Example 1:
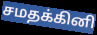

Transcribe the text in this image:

சமதக்கினி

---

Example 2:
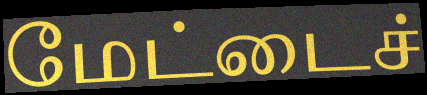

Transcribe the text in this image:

மேட்டைச்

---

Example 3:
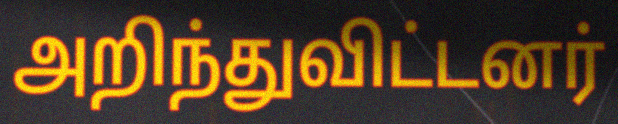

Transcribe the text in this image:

அறிந்துவிட்டனர்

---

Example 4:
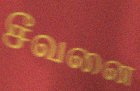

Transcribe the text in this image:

சீவனை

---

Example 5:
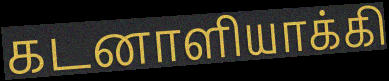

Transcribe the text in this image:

கடனாளியாக்கி